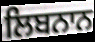
ਲਿਬਨਾਨ